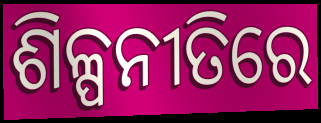
ଶିଳ୍ପନୀତିରେ